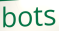
bots